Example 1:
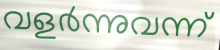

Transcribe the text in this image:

വളർന്നുവന്ന്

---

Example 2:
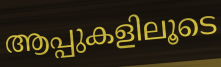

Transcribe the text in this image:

ആപ്പുകളിലൂടെ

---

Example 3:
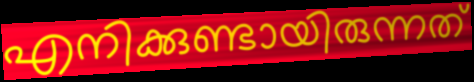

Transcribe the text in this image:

എനിക്കുണ്ടായിരുന്നത്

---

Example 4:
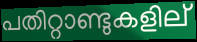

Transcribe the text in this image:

പതിറ്റാണ്ടുകളില്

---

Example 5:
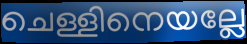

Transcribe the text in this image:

ചെള്ളിനെയല്ലേ